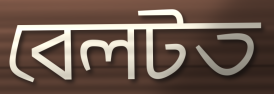
বেলটত